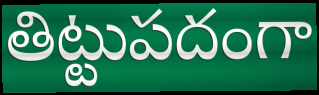
తిట్టుపదంగా